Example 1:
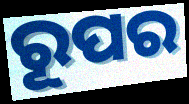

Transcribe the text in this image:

ରୂପର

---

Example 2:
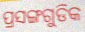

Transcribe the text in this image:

ପ୍ରସଙ୍ଗଗୁଡିକ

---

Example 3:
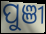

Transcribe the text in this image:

ପୁଞୀ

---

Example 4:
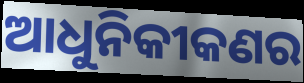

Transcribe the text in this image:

ଆଧୁନିକୀକଣର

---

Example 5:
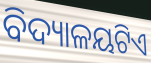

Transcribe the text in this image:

ବିଦ୍ୟାଳୟଟିଏ